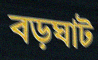
বড়ঘাট